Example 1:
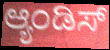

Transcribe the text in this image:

ಆ್ಯಂಡಿಸ್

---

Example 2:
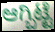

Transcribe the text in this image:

ಆಗ್ಬಿಟ್ಟೆ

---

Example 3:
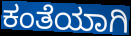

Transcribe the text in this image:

ಕಂತೆಯಾಗಿ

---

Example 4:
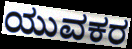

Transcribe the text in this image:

ಯುವಕರ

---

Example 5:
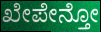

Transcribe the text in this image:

ಖೇಪೇನ್ತೋ